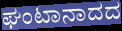
ಘಂಟಾನಾದದ